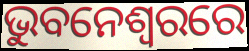
ଭୁବନେଶ୍ୱରରେ